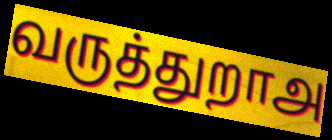
வருத்துறாஅ